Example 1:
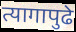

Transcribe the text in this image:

त्यागापुढे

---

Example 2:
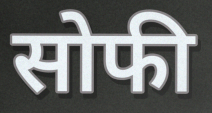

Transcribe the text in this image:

सोफी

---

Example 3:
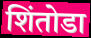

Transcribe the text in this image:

शिंतोडा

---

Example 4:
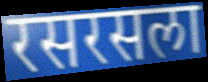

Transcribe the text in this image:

रसरसला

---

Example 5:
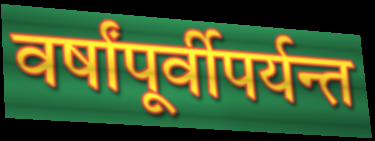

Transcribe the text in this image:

वर्षांपूर्वीपर्यन्त